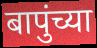
बापुंच्या